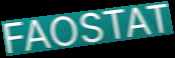
FAOSTAT